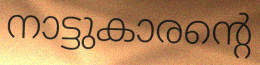
നാട്ടുകാരന്റെ